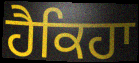
ਹੈਕਿਹਾ